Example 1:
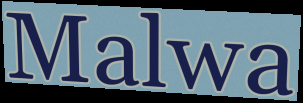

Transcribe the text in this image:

Malwa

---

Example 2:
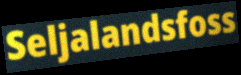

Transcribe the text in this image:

Seljalandsfoss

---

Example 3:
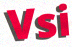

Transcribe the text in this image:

Vsi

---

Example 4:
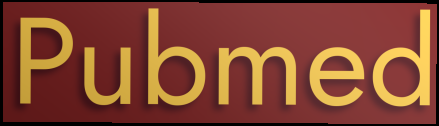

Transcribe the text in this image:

Pubmed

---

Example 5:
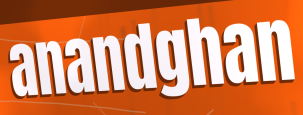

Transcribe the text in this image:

anandghan